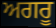
ਅਗਰੂ